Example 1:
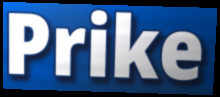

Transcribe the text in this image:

Prike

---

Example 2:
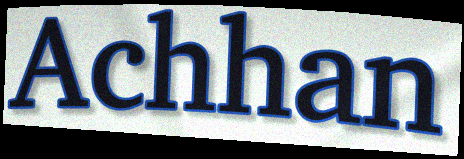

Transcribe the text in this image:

Achhan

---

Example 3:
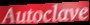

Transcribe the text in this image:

Autoclave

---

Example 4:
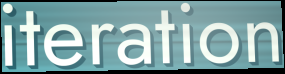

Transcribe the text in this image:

iteration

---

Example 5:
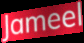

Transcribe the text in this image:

Jameel